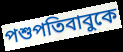
পশুপতিবাবুকে